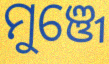
ମୁଞ୍ଜେ